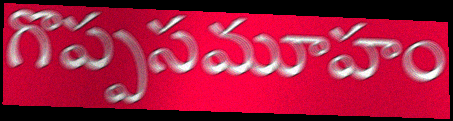
గొప్పసమూహం